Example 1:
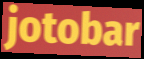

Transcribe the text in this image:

jotobar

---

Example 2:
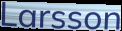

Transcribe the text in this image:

Larsson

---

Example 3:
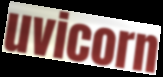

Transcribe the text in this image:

uvicorn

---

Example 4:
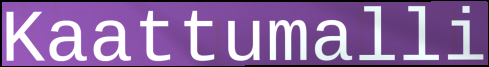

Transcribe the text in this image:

Kaattumalli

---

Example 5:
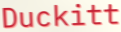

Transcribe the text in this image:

Duckitt